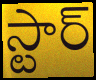
స్టార్